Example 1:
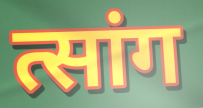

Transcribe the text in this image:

त्सांग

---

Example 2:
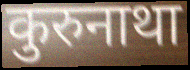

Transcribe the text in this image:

कुरुनाथा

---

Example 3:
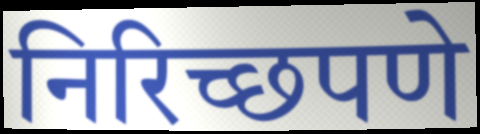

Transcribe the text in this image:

निरिच्छपणे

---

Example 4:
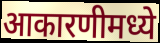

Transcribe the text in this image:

आकारणीमध्ये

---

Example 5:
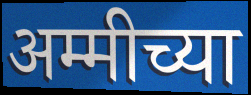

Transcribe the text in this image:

अम्मीच्या